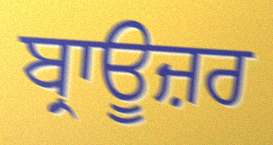
ਬ੍ਰਾਊਜ਼ਰ